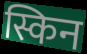
स्किन